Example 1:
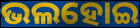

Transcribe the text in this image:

ଭଲହୋଇ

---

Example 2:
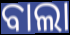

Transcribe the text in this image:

ବାଲା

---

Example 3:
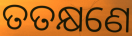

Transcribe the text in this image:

ତତକ୍ଷଣେ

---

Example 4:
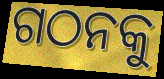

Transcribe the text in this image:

ଗଠନକୁ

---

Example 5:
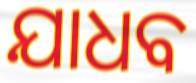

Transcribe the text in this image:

ଯାଧବ